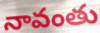
నావంతు